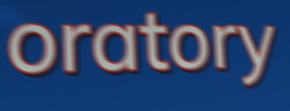
oratory